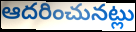
ఆదరించునట్లు